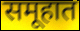
समूहात